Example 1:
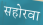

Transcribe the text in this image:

सहोरवा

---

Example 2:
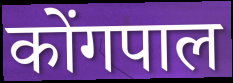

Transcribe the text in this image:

कोंगपाल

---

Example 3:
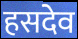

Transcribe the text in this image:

हसदेव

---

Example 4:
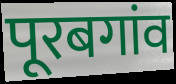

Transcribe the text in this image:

पूरबगांव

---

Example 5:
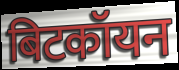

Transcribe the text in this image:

बिटकॉयन